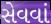
સેવવાં